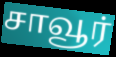
சாவூர்